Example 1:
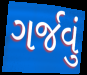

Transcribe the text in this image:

ગર્જવું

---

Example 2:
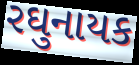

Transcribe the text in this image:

રઘુનાયક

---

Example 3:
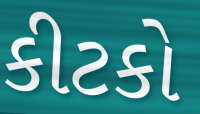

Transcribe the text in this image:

કીટકો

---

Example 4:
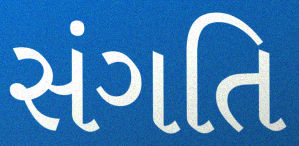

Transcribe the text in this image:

સંગતિ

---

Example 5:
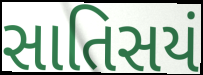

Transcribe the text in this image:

સાતિસયં